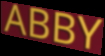
ABBY